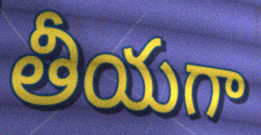
తీయగా